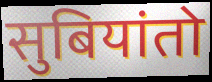
सुबियांतो